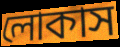
লোকাস